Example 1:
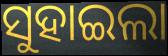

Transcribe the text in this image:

ସୁହାଇଲା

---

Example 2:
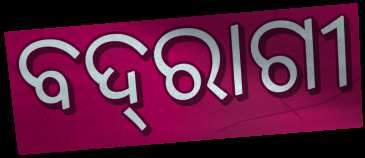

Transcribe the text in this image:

ବଦ୍‌ରାଗୀ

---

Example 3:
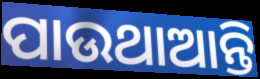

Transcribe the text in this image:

ପାଉଥାଆନ୍ତି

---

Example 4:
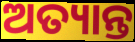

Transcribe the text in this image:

ଅତ୍ୟାନ୍ତ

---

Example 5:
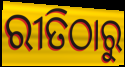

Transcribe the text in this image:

ରୀତିଠାରୁ